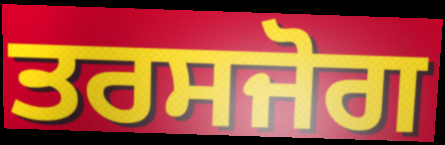
ਤਰਸਜੋਗ